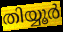
തിയ്യൂർ